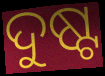
ଦୁଷ୍ଟ